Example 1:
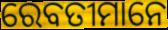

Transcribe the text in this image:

ରେବତୀମାନେ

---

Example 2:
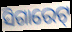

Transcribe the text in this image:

ସିଗାରେଟ୍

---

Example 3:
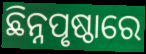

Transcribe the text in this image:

ଛିନ୍ନପୃଷ୍ଠାରେ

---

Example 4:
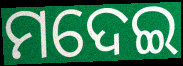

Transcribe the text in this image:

ମଦେଇ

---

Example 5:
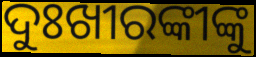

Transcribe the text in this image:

ଦୁଃଖୀରଙ୍କୀଙ୍କୁ